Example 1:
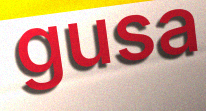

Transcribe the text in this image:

gusa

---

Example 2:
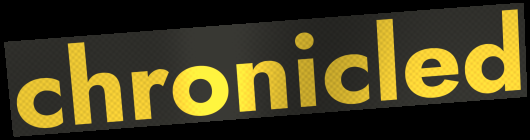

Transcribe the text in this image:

chronicled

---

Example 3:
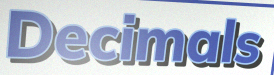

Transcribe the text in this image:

Decimals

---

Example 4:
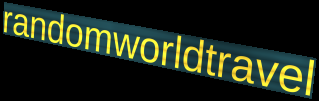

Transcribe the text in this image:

randomworldtravel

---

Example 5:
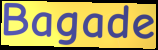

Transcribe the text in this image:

Bagade